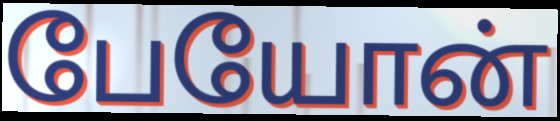
பேயோன்